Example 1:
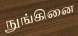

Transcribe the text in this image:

நுங்கினை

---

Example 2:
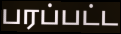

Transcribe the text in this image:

பரப்பட்ட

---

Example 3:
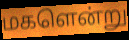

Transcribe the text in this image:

மகளென்று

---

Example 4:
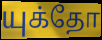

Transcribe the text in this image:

யுக்தோ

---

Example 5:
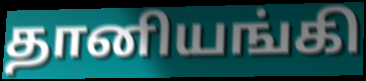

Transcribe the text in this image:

தானியங்கி